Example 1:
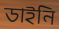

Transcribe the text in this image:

ডাইনি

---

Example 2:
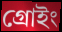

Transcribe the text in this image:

গ্রোইং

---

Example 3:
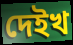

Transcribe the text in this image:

দেইখ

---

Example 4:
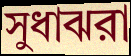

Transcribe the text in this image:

সুধাঝরা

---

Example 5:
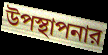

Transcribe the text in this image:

উপস্থাপনার